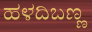
ಹಳದಿಬಣ್ಣ